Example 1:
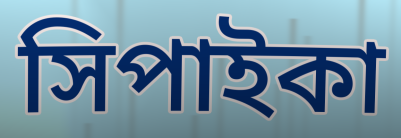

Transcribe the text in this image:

সিপাইকা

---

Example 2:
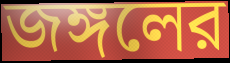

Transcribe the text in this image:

জঙ্গলের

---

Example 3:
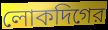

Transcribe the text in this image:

লোকদিগের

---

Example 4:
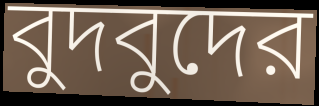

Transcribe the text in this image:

বুদবুদের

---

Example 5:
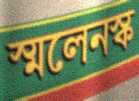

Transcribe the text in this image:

স্মলেনস্ক